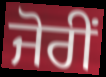
ਜੋਰੀਂ